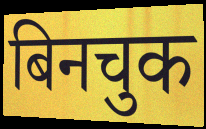
बिनचुक